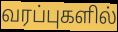
வரப்புகளில்